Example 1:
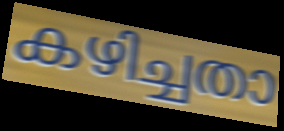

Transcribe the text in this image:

കഴിച്ചതാ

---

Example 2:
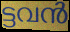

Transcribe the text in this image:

ട്ടവൻ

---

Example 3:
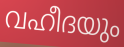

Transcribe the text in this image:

വഹീദയും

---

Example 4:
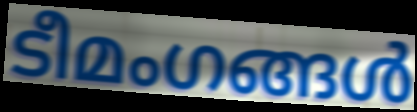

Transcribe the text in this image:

ടീമംഗങ്ങൾ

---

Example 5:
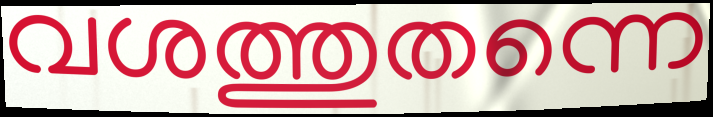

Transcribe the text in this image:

വശത്തുതന്നെ